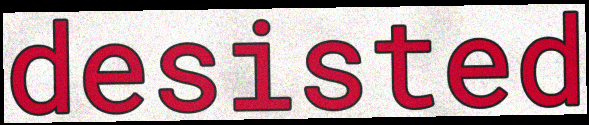
desisted